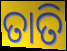
ତାତି